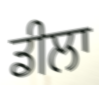
ਡੀਲਾ